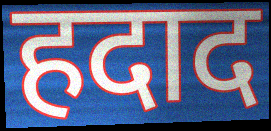
हदाद